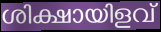
ശിക്ഷായിളവ്